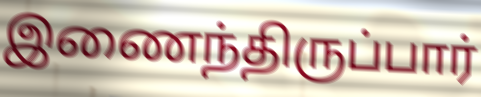
இணைந்திருப்பார்